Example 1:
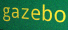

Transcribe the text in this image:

gazebo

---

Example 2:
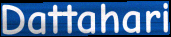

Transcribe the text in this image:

Dattahari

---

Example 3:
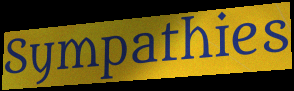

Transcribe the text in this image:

Sympathies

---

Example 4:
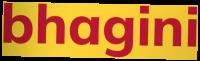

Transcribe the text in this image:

bhagini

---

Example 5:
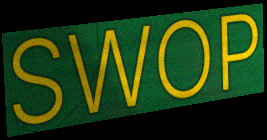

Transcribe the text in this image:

SWOP